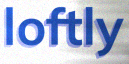
loftly